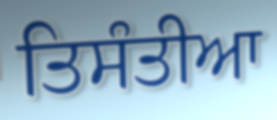
ਤਿਸੰਤੀਆ